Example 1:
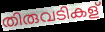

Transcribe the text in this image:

തിരുവടികള്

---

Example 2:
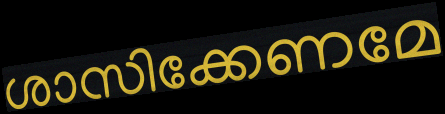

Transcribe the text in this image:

ശാസിക്കേണമേ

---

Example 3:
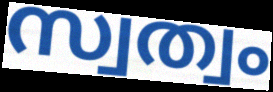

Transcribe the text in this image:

സ്വത്വം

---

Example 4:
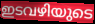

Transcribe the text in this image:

ഇടവഴിയുടെ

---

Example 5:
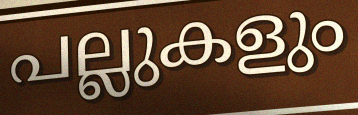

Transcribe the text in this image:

പല്ലുകളും